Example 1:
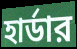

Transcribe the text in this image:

হার্ডার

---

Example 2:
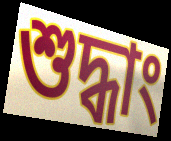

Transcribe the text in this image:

শুদ্ধাং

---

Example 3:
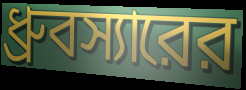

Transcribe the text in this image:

ধ্রুবস্যারের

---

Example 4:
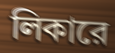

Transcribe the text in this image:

লিকারে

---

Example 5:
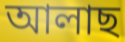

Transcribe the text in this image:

আলাছ